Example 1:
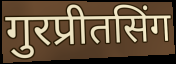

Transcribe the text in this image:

गुरप्रीतसिंग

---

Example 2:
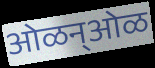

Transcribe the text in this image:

ओळन्ओळ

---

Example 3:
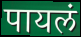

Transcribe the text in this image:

पायलं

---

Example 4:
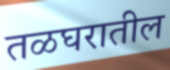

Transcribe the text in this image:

तळघरातील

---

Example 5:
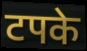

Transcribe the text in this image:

टपके